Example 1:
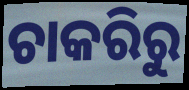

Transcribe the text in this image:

ଚାକରିରୁ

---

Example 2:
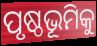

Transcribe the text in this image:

ପୃଷ୍ଠଭୂମିକୁ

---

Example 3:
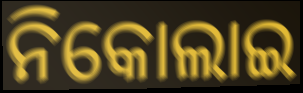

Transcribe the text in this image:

ନିକୋଲାଇ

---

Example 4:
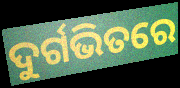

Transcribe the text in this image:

ଦୁର୍ଗଭିତରେ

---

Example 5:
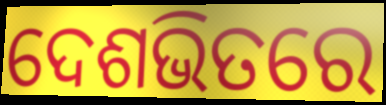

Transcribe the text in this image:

ଦେଶଭିତରେ